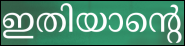
ഇതിയാന്റെ